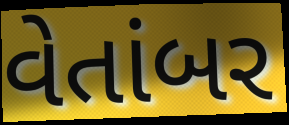
વેતાંબર